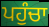
ਪਹੁੰਚਾ